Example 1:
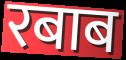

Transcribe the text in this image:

रबाब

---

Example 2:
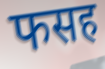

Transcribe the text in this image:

फसह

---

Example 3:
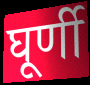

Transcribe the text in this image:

घूर्णी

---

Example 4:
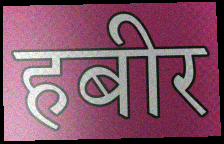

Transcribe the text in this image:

हबीर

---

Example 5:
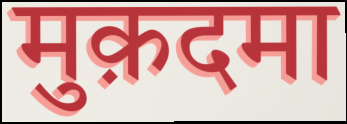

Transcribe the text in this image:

मुक़दमा